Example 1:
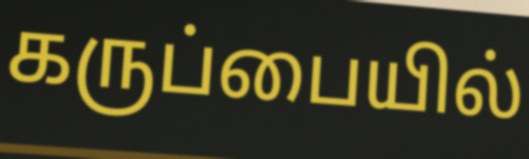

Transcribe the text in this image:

கருப்பையில்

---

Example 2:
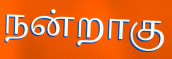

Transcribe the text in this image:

நன்றாகு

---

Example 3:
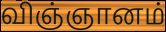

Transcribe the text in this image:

விஞ்ஞானம்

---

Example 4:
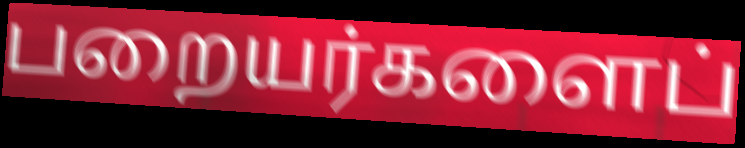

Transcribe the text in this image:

பறையர்களைப்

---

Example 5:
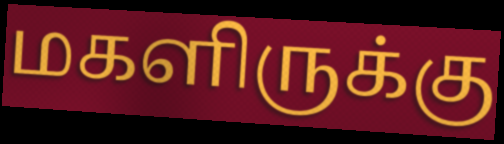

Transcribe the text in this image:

மகளிருக்கு